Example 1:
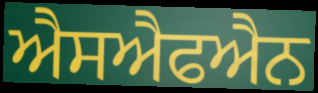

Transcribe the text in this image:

ਐਸਐਫਐਨ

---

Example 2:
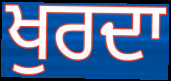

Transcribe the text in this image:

ਖੁਰਦਾ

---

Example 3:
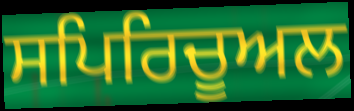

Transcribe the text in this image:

ਸਪਿਰਿਚੂਅਲ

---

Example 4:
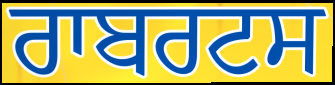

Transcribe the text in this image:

ਰਾਬਰਟਸ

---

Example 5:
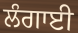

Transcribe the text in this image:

ਲੰਗਾਈ